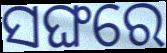
ସଙ୍ଘରେ